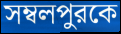
সম্বলপুরকে